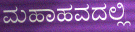
ಮಹಾಹವದಲ್ಲಿ